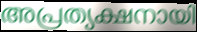
അപ്രത്യക്ഷനായി